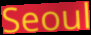
Seoul